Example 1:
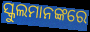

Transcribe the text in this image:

ସ୍କୁଲମାନଙ୍କରେ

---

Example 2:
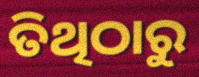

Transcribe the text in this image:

ତିଥିଠାରୁ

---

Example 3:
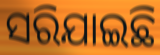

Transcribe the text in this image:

ସରିଯାଇଛି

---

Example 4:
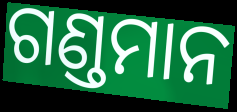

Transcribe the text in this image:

ଗଣ୍ଡମାନ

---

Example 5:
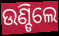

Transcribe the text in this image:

ଉଣ୍ଡିଲେ